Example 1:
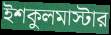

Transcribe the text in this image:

ইশকুলমাস্টার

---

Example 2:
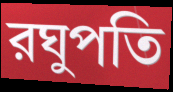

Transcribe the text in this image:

রঘুপতি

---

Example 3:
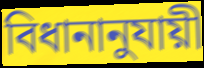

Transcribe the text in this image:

বিধানানুযায়ী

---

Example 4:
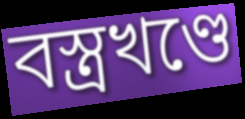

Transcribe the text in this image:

বস্ত্রখণ্ডে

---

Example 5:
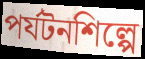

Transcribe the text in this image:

পর্যটনশিল্পে